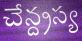
చేన్ద్రస్య